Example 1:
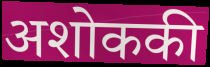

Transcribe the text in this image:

अशोककी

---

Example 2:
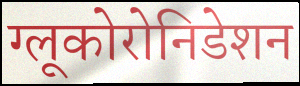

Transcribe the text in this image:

ग्लूकोरोनिडेशन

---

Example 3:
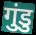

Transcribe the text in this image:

गुंडु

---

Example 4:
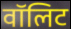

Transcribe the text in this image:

वॉलिट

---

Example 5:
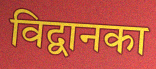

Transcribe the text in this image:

विद्वानका